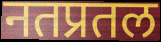
नतप्रतल